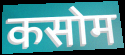
कसोम